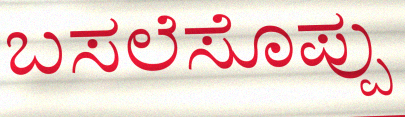
ಬಸಲೆಸೊಪ್ಪು